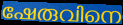
ഷേരുവിനെ